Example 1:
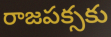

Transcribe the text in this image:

రాజపక్సకు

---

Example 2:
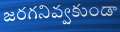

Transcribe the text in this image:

జరగనివ్వకుండా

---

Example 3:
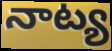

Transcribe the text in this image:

నాట్య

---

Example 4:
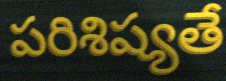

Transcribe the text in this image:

పరిశిష్యతే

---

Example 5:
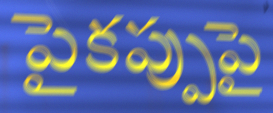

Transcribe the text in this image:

పైకప్పుపై